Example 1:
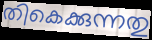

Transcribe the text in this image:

തികെക്കുന്നതു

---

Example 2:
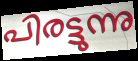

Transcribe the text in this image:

പിരട്ടുന്നു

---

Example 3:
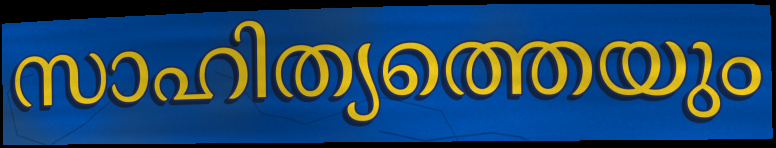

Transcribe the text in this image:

സാഹിത്യത്തെയും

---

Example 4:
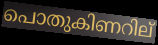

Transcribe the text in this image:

പൊതുകിണറില്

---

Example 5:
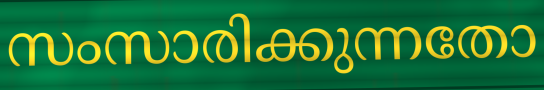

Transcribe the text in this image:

സംസാരിക്കുന്നതോ